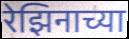
रेझिनाच्या